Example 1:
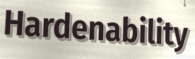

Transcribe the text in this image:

Hardenability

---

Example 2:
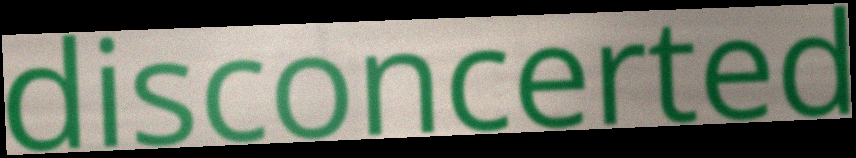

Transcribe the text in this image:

disconcerted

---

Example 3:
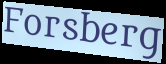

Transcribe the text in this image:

Forsberg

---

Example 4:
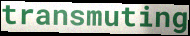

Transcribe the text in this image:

transmuting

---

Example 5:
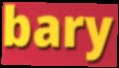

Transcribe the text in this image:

bary